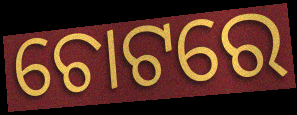
ଚୋଟରେ